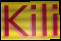
Kili